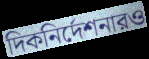
দিকনির্দেশনারও